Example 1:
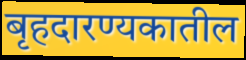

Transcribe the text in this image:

बृहदारण्यकातील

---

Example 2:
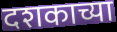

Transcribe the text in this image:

दशकाच्या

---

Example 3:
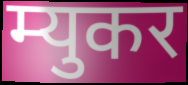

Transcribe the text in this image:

म्युकर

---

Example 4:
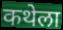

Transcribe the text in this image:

कथेला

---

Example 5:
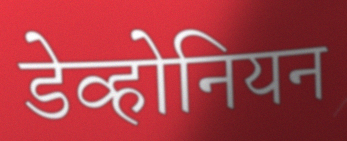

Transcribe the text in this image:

डेव्होनियन